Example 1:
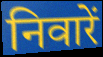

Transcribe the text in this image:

निवारें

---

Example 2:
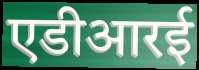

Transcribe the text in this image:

एडीआरई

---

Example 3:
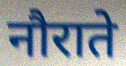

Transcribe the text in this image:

नौराते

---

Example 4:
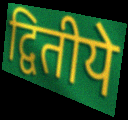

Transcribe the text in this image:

द्वितीये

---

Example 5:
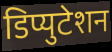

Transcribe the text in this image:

डिप्युटेशन